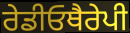
ਰੇਡੀਓਥੈਰੇਪੀ